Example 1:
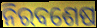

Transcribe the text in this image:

ନିରବଶେଷ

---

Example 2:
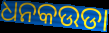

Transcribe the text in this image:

ଧନକଉଡା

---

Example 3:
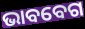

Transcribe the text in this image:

ଭାବବେଗ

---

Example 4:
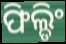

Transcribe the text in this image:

ଫିଲ୍ଡିଂ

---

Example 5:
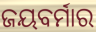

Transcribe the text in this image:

ଜୟବର୍ମାର